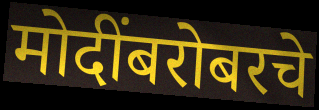
मोदींबरोबरचे